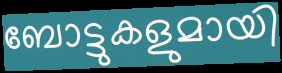
ബോട്ടുകളുമായി